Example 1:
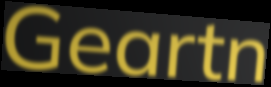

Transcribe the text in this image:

Geartn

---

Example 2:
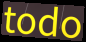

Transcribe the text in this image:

todo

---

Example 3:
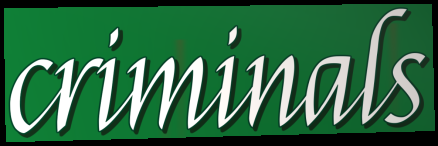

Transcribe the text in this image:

criminals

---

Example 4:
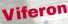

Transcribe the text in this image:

Viferon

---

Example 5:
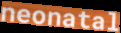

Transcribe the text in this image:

neonatal